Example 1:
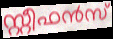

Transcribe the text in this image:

സ്റ്റീഫൻസ്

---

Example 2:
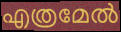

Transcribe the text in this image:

എത്രമേൽ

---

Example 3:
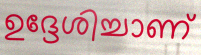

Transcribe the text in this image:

ഉദ്ദേശിച്ചാണ്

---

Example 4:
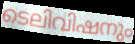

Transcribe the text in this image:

ടെലിവിഷനും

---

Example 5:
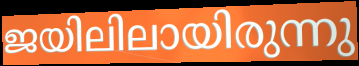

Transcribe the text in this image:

ജയിലിലായിരുന്നു